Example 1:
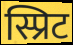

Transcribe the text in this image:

स्प्रिट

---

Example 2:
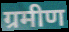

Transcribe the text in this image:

ग्रमीण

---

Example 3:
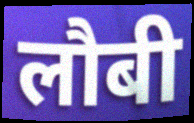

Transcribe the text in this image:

लौबी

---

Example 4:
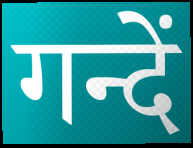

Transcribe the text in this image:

गन्दें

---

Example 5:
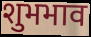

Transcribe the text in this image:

शुभभाव